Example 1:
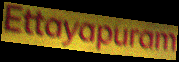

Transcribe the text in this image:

Ettayapuram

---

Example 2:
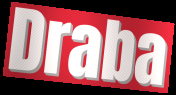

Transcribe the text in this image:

Draba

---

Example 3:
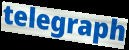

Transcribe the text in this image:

telegraph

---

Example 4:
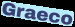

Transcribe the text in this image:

Graeco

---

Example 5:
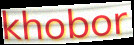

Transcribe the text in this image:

khobor